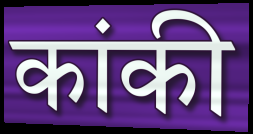
कांकी